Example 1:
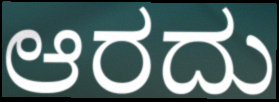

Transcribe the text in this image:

ಆರದು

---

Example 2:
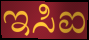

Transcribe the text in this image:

ಇಸಿಐ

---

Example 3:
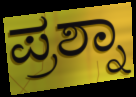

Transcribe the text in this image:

ಪ್ರಶ್ನಾ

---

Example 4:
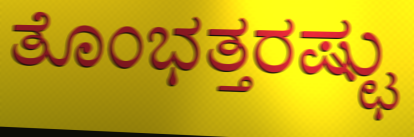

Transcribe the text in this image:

ತೊಂಭತ್ತರಷ್ಟು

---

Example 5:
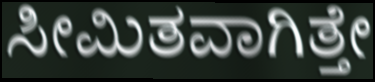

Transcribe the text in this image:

ಸೀಮಿತವಾಗಿತ್ತೇ